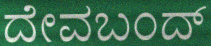
ದೇವಬಂದ್